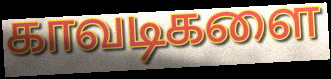
காவடிகளை